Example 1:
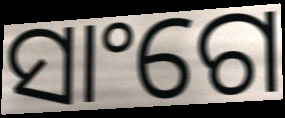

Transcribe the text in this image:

ସାଂଗେ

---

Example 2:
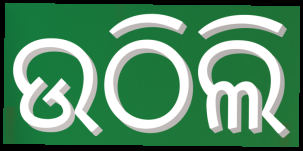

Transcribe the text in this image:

ଉଠିଲି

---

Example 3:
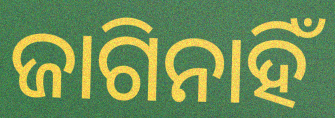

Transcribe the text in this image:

ଜାଗିନାହିଁ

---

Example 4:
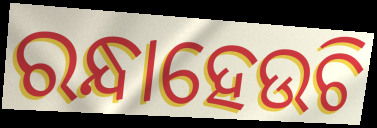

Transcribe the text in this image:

ରନ୍ଧାହେଉଚି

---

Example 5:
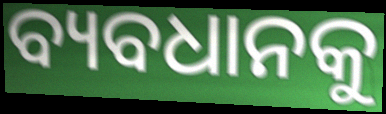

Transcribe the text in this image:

ବ୍ୟବଧାନକୁ